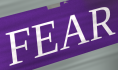
FEAR